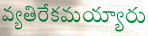
వ్యతిరేకమయ్యారు